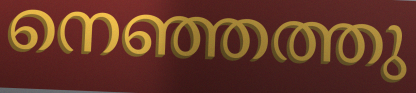
നെഞ്ഞത്തു